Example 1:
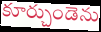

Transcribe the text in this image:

కూర్చుండెను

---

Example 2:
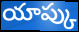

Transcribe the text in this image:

యాప్కు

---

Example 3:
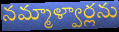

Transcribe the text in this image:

నమ్మాళ్వార్లను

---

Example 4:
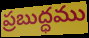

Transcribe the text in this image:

ప్రబుద్ధము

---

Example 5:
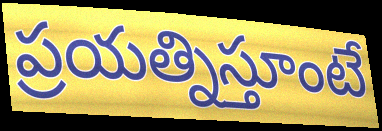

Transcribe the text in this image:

ప్రయత్నిస్తూంటే